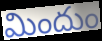
మిందుం